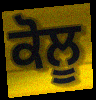
ਕੋਲੂ